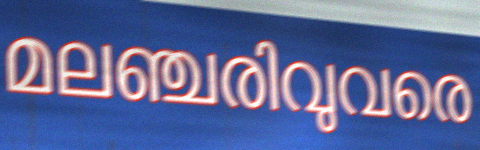
മലഞ്ചരിവുവരെ